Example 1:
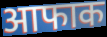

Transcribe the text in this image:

आफाक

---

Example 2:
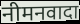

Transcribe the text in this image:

नीमनवादा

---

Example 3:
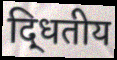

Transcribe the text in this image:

द्धितीय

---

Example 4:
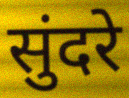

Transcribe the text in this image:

सुंदरे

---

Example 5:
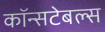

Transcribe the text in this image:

कॉन्सटेबल्स